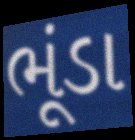
ભૂંડા